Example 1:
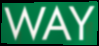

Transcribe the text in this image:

WAY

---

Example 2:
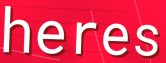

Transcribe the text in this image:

heres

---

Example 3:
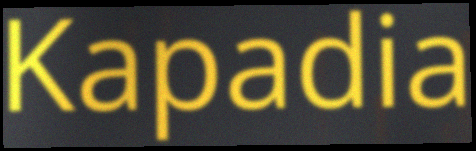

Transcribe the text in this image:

Kapadia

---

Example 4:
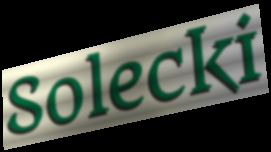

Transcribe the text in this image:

Solecki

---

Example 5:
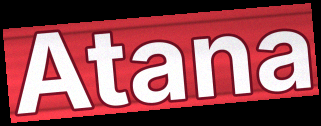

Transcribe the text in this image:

Atana